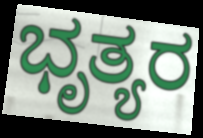
ಭೃತ್ಯರ